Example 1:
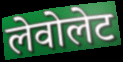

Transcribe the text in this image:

लेवोलेट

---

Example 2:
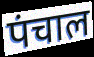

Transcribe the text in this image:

पंचाल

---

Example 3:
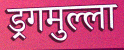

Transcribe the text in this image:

ड्रगमुल्ला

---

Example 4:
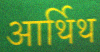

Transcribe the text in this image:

आर्थिथ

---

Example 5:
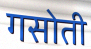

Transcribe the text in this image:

गसोती